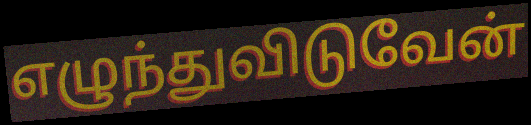
எழுந்துவிடுவேன்